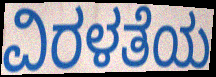
ವಿರಳತೆಯ